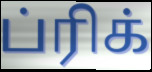
ப்ரிக்